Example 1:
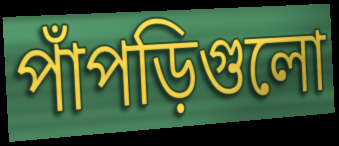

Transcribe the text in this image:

পাঁপড়িগুলো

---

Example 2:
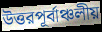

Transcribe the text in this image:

উত্তরপূর্বাঞ্চলীয়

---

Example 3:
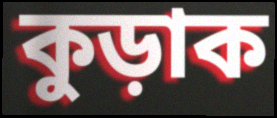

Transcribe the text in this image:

কুড়াক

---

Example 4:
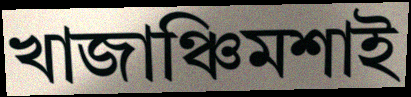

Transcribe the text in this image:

খাজাঞ্চিমশাই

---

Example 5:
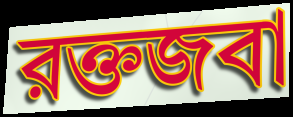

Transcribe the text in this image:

রক্তজবা